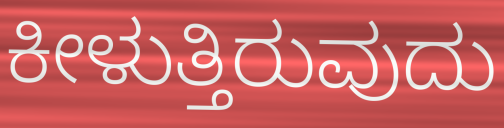
ಕೀಳುತ್ತಿರುವುದು